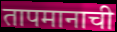
तापमानाची